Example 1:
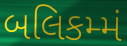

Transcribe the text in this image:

બલિકમ્મં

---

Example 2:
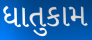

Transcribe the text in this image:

ધાતુકામ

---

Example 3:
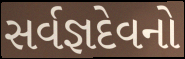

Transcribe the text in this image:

સર્વજ્ઞદેવનો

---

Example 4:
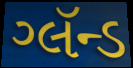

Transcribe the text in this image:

ગ્લૅન્ડ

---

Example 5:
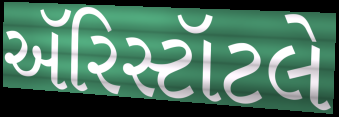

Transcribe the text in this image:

ઍરિસ્ટૉટલે